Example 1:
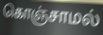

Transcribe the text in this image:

கொஞ்சாமல்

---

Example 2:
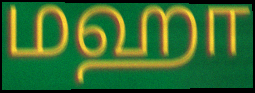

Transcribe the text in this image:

மஹா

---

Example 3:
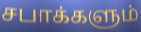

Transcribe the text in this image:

சபாக்களும்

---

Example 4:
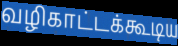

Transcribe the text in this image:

வழிகாட்டக்கூடிய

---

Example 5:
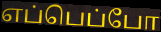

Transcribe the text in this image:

எப்பெப்போ